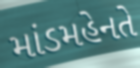
માંડમહેનતે